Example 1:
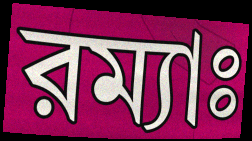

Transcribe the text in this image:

রম্যাঃ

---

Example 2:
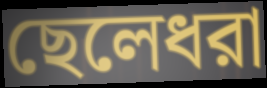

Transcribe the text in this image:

ছেলেধরা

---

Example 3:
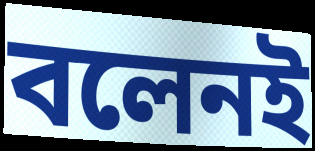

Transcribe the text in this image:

বলেনই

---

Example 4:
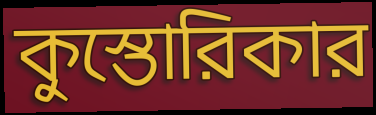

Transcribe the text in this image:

কুস্তোরিকার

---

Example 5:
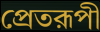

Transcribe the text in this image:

প্রেতরূপী